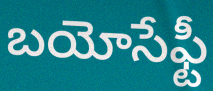
బయోసేఫ్టీ